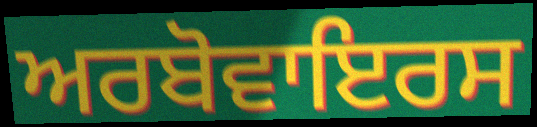
ਅਰਬੋਵਾਇਰਸ